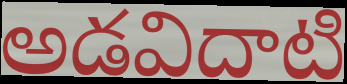
అడవిదాటి